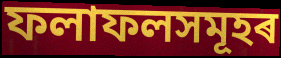
ফলাফলসমূহৰ